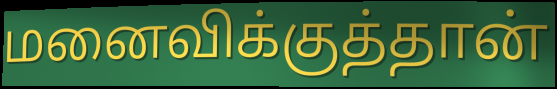
மனைவிக்குத்தான்